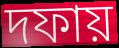
দফায়